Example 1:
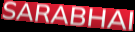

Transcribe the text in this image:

SARABHAI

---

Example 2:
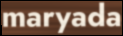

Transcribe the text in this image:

maryada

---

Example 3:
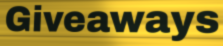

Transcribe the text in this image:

Giveaways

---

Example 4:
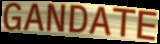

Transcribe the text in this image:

GANDATE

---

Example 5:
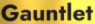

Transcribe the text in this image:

Gauntlet